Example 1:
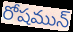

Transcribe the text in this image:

రోషమున్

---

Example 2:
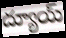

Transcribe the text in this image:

ద్యూయ్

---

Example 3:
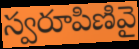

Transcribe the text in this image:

స్వరూపిణివై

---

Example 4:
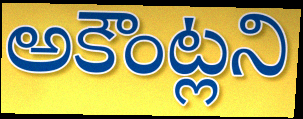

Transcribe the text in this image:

అకౌంట్లని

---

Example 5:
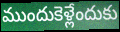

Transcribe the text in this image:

ముందుకెళ్లేందుకు